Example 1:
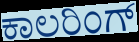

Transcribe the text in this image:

ಕಾಲರಿಂಗ್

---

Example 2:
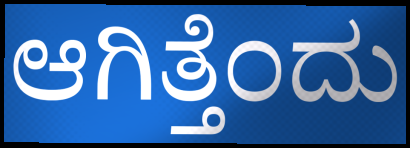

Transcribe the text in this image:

ಆಗಿತ್ತೆಂದು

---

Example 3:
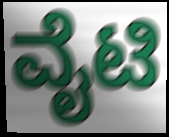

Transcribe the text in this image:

ವೈಟಿ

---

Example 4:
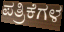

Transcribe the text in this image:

ಪತ್ರಿಕೆಗಳ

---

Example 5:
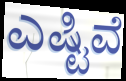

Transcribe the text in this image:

ಎಷ್ಟಿವೆ